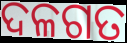
ଦଳଗତ